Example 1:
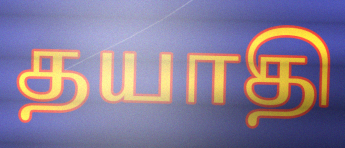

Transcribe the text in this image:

தயாதி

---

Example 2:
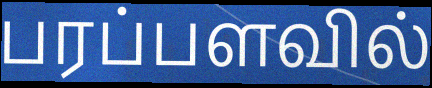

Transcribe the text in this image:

பரப்பளவில்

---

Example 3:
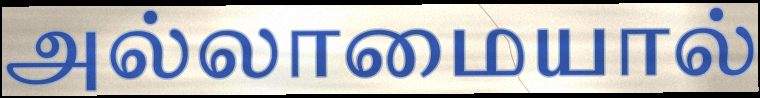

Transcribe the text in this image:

அல்லாமையால்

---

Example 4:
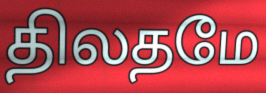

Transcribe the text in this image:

திலதமே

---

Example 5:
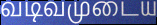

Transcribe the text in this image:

வடிவமுடைய